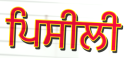
ਪਿਸੀਲੀ